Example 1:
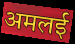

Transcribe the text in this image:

अमलई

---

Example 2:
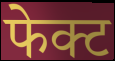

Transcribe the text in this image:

फेक्ट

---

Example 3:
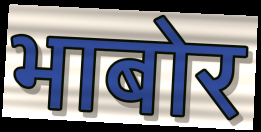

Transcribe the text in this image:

भाबोर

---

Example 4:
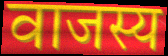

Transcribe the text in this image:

वाजस्य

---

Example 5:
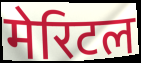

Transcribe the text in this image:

मेरिटल